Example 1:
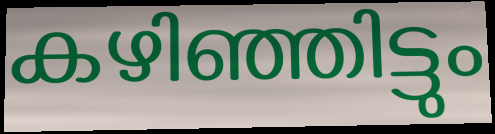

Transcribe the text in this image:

കഴിഞ്ഞിട്ടും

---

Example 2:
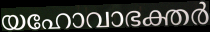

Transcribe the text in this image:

യഹോവാഭക്തർ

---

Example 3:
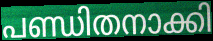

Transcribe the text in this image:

പണ്ഡിതനാക്കി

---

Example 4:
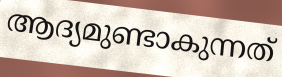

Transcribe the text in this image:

ആദ്യമുണ്ടാകുന്നത്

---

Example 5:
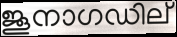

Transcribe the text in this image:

ജൂനാഗഡില്